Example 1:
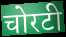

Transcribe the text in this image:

चोरटी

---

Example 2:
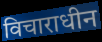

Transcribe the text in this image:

विचाराधीन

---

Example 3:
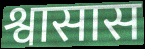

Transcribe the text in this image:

श्वासास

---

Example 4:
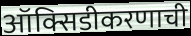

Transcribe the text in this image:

ऑक्सिडीकरणाची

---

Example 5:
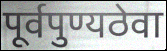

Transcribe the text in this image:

पूर्वपुण्यठेवा